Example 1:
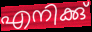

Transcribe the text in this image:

എനിക്കു്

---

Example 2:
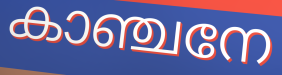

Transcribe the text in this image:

കാഞ്ചനേ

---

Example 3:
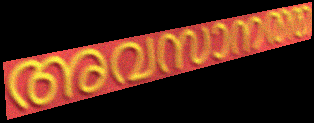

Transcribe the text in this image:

അവസാനത്ത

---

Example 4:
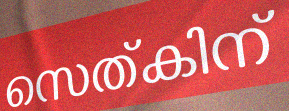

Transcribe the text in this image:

സെത്കിന്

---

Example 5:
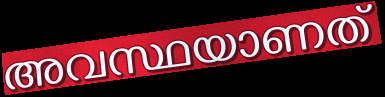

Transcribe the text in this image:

അവസ്ഥയാണത്